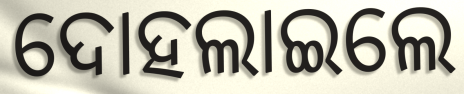
ଦୋହଲାଇଲେ